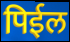
पिईल